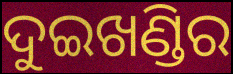
ଦୁଇଖଣ୍ଡିର